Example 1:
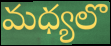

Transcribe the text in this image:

మధ్యలొ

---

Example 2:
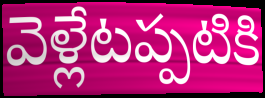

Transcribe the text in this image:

వెళ్లేటప్పటికి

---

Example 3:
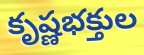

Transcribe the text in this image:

కృష్ణభక్తుల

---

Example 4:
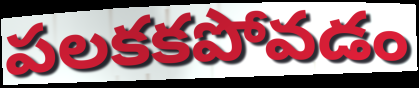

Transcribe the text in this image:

పలకకపోవడం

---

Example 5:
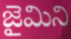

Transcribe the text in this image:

జైమిని